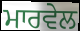
ਮਾਰਵੇਲ